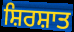
ਸ਼ਿਰਸ਼ਾਤ